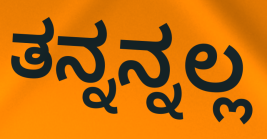
ತನ್ನನ್ನಲ್ಲ